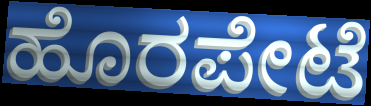
ಹೊರಪೇಟೆ